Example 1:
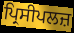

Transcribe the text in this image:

ਪ੍ਰਿਸੀਪਲਜ਼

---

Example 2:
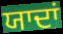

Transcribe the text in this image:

ਯਾਦਾਂ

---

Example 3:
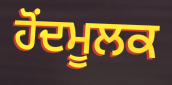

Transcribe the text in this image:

ਹੋਂਦਮੂਲਕ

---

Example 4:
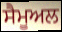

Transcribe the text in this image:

ਸੈਮੂਅਲ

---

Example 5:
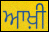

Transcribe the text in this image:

ਆਖ਼ੀ